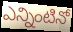
ఎన్నింటినో